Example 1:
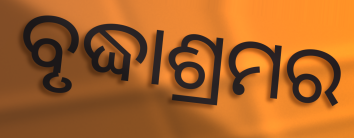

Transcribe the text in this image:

ବୃଦ୍ଧାଶ୍ରମର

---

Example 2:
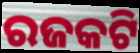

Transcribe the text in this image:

ରଜକଟି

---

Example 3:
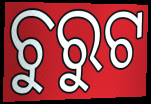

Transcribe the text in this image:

ଚୁରୁଟ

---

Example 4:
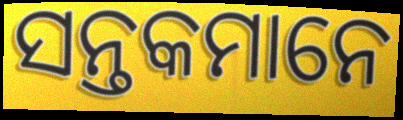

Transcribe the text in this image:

ସନ୍ତକମାନେ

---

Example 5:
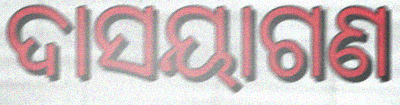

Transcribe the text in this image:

ଦାସୟାଗଣ